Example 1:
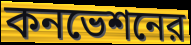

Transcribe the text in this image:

কনভেশনের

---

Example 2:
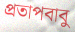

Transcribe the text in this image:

প্রতাপবাবু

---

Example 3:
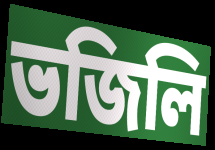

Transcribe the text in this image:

ভজিলি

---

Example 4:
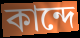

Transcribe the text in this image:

কান্দে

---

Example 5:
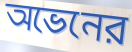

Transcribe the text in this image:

অভেনের